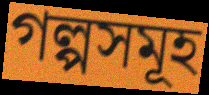
গল্পসমূহ